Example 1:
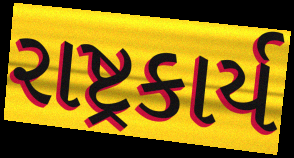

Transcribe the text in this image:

રાષ્ટ્રકાર્ય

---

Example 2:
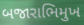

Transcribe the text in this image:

બજારાભિમુખ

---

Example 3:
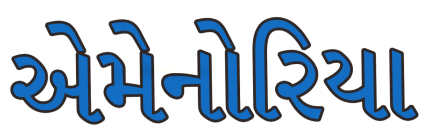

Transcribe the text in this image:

એમેનોરિયા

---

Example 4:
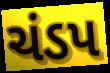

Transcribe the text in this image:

ચંડપ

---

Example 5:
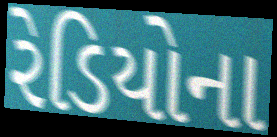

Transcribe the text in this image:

રેડિયોના